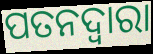
ପତନଦ୍ଵାରା